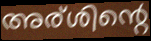
അര്ശിന്റെ